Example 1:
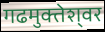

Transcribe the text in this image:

गढमुक्तेश्वर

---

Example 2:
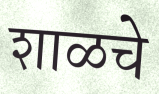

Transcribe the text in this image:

शाळचे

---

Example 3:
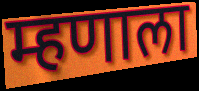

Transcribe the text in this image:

म्‍हणाला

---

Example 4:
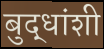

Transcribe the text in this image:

बुद्धांशी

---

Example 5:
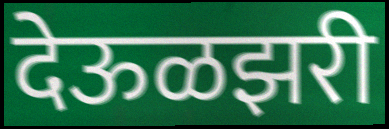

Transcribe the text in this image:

देऊळझरी